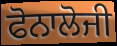
ਫੋਨਾਲੋਜੀ